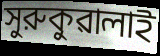
সুৰুকুৱালাই